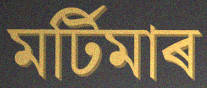
মৰ্টিমাৰ